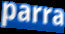
parra